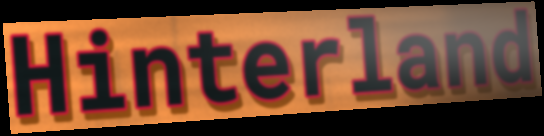
Hinterland